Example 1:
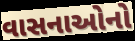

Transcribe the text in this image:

વાસનાઓનો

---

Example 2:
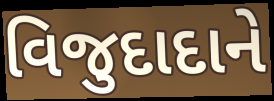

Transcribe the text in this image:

વિજુદાદાને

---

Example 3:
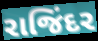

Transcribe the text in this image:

રાજિંદર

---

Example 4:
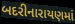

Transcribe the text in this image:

બદરીનારાયણમાં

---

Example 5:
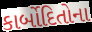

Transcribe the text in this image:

કાર્બોદિતોના